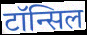
टॉन्सिल